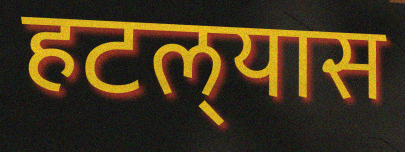
हटल्यास